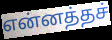
என்னத்தச்